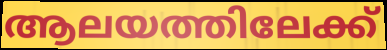
ആലയത്തിലേക്ക്